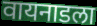
वायनाडला